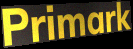
Primark